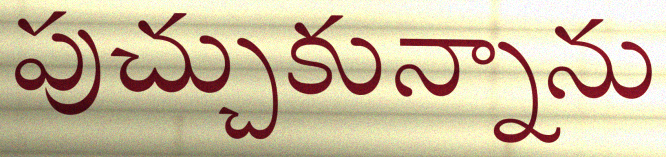
పుచ్చుకున్నాను